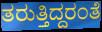
ತರುತ್ತಿದ್ದರಂತೆ